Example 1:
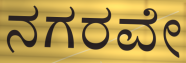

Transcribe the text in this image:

ನಗರವೇ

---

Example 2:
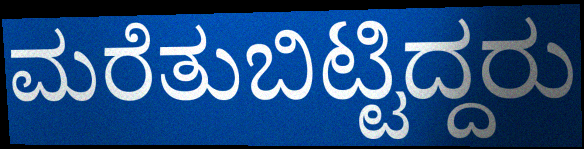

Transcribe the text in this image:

ಮರೆತುಬಿಟ್ಟಿದ್ದರು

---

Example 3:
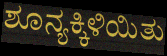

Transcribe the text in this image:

ಶೂನ್ಯಕ್ಕಿಳಿಯಿತು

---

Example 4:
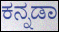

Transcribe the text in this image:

ಕನ್ನಡಾ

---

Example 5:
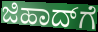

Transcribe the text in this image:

ಜಿಹಾದ್‌ಗೆ